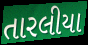
તારલીયા